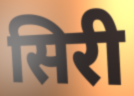
सिरी